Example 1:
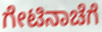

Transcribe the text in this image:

ಗೇಟಿನಾಚೆಗೆ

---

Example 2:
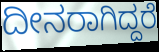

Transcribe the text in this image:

ದೀನರಾಗಿದ್ದರೆ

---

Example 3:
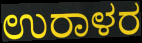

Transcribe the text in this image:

ಉರಾಳರ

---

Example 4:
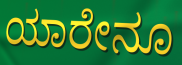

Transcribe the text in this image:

ಯಾರೇನೂ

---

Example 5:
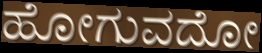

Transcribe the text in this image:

ಹೋಗುವದೋ